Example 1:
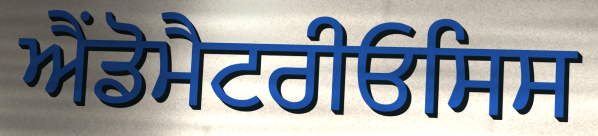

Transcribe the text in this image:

ਐਂਡੋਮੈਟਰੀਓਸਿਸ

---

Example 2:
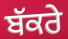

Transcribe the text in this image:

ਬੱਕਰੇ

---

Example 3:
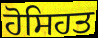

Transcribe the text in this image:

ਹੋਸਿਹਤ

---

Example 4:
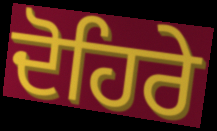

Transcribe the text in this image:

ਦੋਹਿਰੇ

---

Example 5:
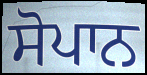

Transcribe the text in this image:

ਸੋਪਾਨ